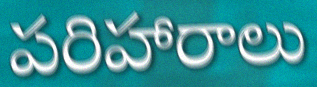
పరిహారాలు